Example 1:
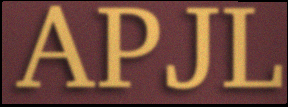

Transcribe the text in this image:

APJL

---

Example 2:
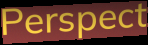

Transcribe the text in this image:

Perspect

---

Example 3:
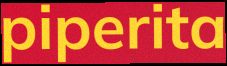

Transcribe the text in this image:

piperita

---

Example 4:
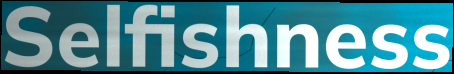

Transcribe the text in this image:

Selfishness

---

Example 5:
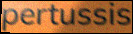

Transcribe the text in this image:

pertussis